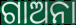
ଗାଅନା